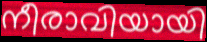
നീരാവിയായി